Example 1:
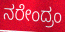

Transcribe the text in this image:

ನರೇಂದ್ರಂ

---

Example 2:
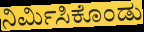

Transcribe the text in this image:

ನಿರ್ಮಿಸಿಕೊಂಡು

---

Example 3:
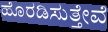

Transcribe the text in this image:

ಹೊರಡಿಸುತ್ತೇವೆ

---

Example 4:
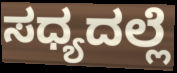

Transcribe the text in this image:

ಸಧ್ಯದಲ್ಲೆ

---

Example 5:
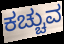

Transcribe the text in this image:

ಕಚ್ಚುವ